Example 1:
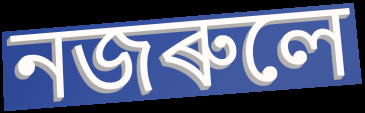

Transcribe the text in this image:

নজৰুলে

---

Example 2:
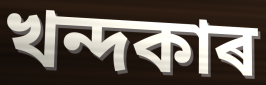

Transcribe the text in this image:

খন্দকাৰ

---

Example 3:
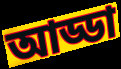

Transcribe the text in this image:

আড্ডা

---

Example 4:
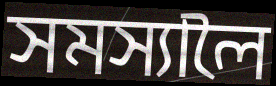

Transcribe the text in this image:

সমস্যালৈ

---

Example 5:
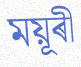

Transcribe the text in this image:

ময়ূৰী